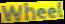
Wheel